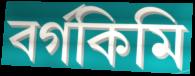
বর্গকিমি